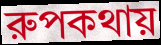
রুপকথায়